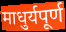
माधुर्यपूर्ण